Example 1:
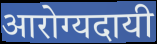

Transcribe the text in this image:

आरोग्यदायी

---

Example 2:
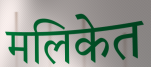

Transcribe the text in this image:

मलिकेत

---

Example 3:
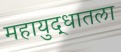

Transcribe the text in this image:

महायुद्धातला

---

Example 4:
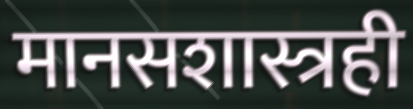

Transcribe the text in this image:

मानसशास्त्रही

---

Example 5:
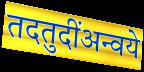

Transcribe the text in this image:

तदतुदींअन्वये